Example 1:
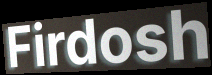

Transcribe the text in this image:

Firdosh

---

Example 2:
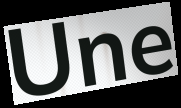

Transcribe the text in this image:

Une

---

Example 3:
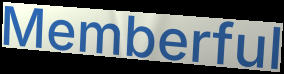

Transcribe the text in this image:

Memberful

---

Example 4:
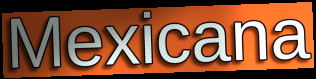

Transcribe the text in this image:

Mexicana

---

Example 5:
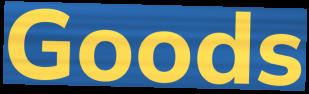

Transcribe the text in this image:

Goods